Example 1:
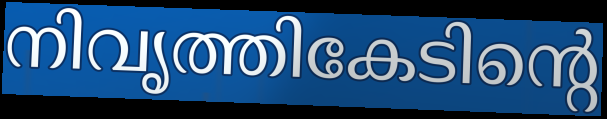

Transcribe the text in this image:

നിവൃത്തികേടിന്റെ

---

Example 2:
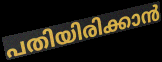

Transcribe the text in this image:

പതിയിരിക്കാൻ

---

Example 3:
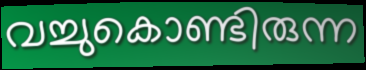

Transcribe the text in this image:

വച്ചുകൊണ്ടിരുന്ന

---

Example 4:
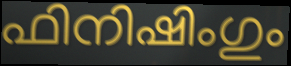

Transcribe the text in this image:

ഫിനിഷിംഗും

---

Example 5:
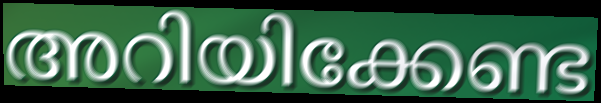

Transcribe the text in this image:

അറിയിക്കേണ്ട